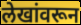
लेखांवरून